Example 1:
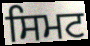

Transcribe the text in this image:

ਸਿਮਟ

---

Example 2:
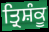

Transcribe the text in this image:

ਤ੍ਰਿਸ਼ੰਕੂ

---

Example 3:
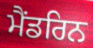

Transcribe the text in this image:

ਮੈਂਡਰਿਨ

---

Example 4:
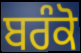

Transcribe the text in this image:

ਬਰੰਕੋ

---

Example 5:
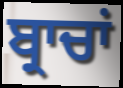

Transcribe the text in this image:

ਬ੍ਰਾਚਾਂ